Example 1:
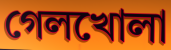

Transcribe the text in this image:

গেলখোলা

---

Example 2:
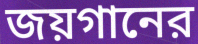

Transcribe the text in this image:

জয়গানের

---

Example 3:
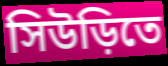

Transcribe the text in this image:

সিউড়িতে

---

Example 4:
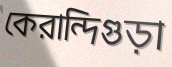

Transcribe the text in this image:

কেরান্দিগুড়া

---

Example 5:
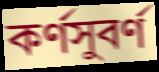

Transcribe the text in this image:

কর্ণসুবর্ণ